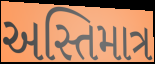
અસ્તિમાત્ર